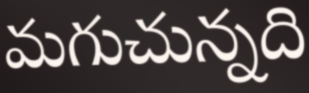
మగుచున్నది